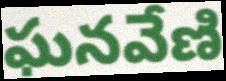
ఘనవేణి